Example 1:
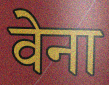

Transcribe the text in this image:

वेना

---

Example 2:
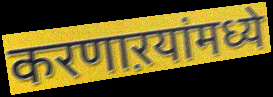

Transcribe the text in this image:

करणाऱयांमध्ये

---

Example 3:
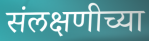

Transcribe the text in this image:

संलक्षणीच्या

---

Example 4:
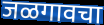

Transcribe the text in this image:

जळगावचा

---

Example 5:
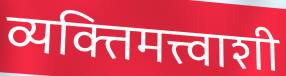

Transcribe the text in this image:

व्यक्तिमत्त्वाशी